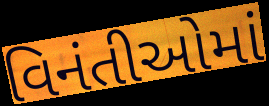
વિનંતીઓમાં